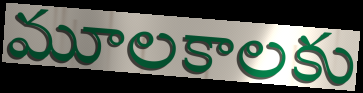
మూలకాలకు